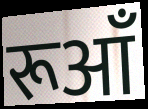
रूआँ